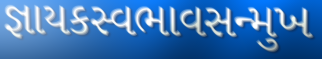
જ્ઞાયકસ્વભાવસન્મુખ